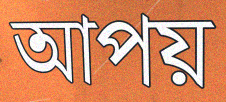
আপয়